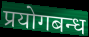
प्रयोगबन्ध